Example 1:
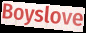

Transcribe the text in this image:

Boyslove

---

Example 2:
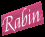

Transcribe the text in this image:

Rabin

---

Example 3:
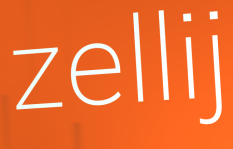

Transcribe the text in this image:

zellij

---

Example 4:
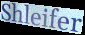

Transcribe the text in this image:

Shleifer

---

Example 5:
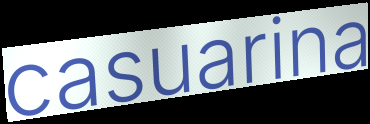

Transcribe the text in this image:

casuarina